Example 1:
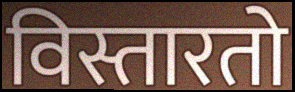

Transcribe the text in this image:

विस्तारतो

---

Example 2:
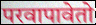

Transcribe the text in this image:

परवापावेतो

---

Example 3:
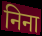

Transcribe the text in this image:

निना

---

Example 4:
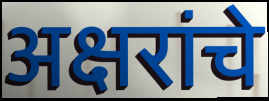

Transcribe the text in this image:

अक्षरांचे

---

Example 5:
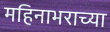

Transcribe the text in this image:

महिनाभराच्या